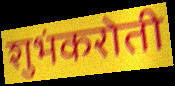
शुभंकरोती